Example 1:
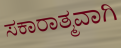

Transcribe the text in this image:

ಸಕಾರಾತ್ಮವಾಗಿ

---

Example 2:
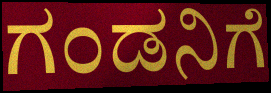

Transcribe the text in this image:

ಗಂಡನಿಗೆ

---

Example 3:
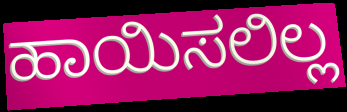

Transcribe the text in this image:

ಹಾಯಿಸಲಿಲ್ಲ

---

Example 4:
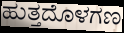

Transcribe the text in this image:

ಹುತ್ತದೊಳಗಣ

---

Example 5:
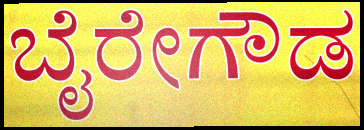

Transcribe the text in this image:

ಬೈರೇಗೌಡ